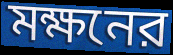
মক্ষনের